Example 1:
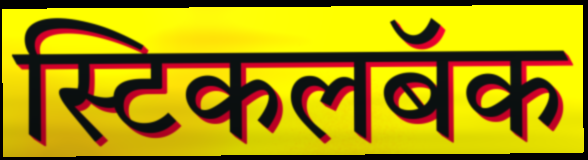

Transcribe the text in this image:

स्टिकलबॅक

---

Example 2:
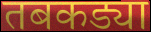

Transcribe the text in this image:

तबकड्या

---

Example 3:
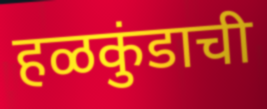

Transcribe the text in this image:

हळकुंडाची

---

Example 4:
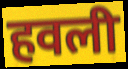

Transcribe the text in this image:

हवली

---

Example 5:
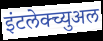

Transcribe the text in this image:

इंटलेक्च्युअल